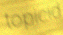
topicid